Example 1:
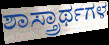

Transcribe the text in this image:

ಶಾಸ್ತ್ರಾರ್ಥಗಳ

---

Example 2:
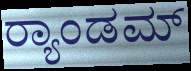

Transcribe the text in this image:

ರ್‍ಯಾಂಡಮ್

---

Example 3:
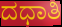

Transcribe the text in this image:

ದಧಾತಿ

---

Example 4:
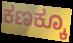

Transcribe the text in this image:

ಕಣಕ್ಕೂ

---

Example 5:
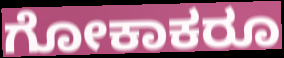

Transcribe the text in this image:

ಗೋಕಾಕರೂ